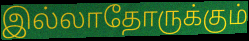
இல்லாதோருக்கும்